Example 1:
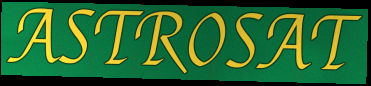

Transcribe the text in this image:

ASTROSAT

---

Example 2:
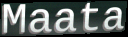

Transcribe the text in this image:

Maata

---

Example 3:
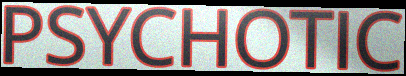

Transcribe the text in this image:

PSYCHOTIC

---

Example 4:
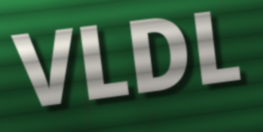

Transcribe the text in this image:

VLDL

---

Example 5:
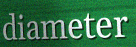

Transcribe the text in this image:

diameter